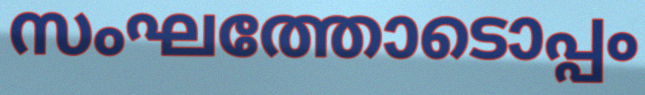
സംഘത്തോടൊപ്പം